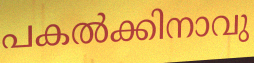
പകൽക്കിനാവു